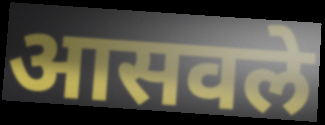
आसवले